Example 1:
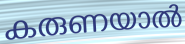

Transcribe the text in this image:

കരുണയാൽ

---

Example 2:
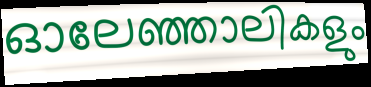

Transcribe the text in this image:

ഓലേഞ്ഞാലികളും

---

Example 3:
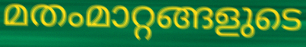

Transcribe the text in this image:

മതംമാറ്റങ്ങളുടെ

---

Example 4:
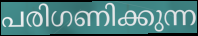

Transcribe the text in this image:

പരിഗണിക്കുന്ന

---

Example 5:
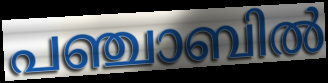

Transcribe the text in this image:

പഞ്ചാബിൽ